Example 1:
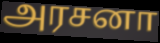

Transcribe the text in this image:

அரசனா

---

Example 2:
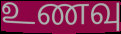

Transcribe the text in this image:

உணவு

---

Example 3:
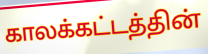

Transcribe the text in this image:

காலக்கட்டத்தின்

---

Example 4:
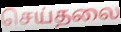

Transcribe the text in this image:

செய்தலை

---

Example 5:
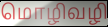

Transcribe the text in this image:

மொழிவழி